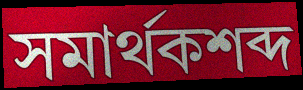
সমার্থকশব্দ